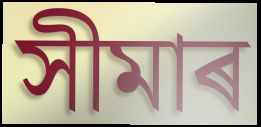
সীমাৰ